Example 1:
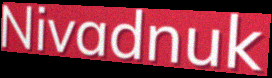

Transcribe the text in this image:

Nivadnuk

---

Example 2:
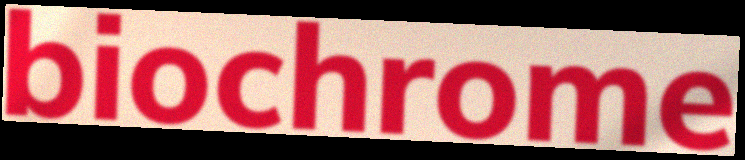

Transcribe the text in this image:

biochrome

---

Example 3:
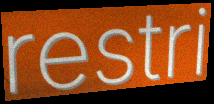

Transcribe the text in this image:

restri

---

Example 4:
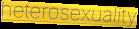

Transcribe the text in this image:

heterosexuality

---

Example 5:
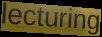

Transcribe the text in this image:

lecturing